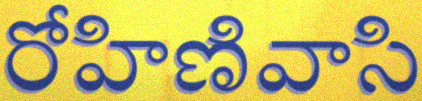
రోహిణివాసి